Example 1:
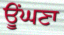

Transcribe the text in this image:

ਊਂਘਣਾ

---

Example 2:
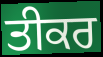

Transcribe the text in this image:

ਤੀਕਰ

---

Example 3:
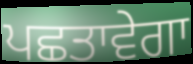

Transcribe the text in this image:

ਪਛਤਾਵੇਗਾ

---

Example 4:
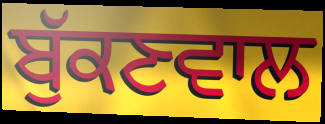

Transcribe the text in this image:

ਬੁੱਕਣਵਾਲ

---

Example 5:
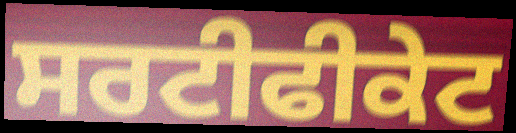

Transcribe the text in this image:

ਸਰਟੀਫੀਕੇਟ